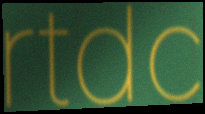
rtdc